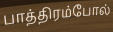
பாத்திரம்போல்